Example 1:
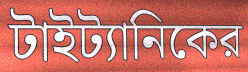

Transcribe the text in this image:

টাইট্যানিকের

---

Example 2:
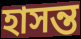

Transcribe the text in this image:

হাসন্ত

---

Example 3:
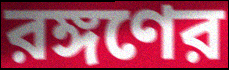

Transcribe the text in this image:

রঙ্গণের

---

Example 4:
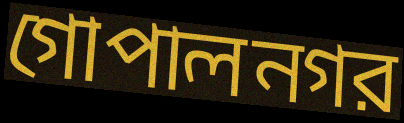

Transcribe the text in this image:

গোপালনগর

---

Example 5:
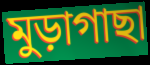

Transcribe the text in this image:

মুড়াগাছা